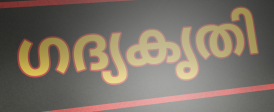
ഗദ്യകൃതി